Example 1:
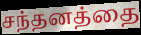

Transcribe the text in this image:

சந்தனத்தை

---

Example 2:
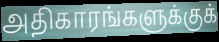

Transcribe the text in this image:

அதிகாரங்களுக்குக்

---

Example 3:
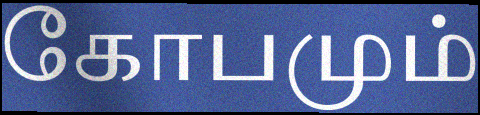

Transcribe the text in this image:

கோபமும்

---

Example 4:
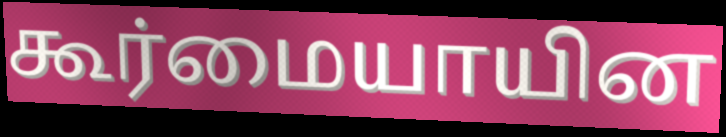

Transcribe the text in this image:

கூர்மையாயின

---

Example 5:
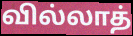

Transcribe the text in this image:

வில்லாத்